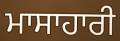
ਮਾਸਾਹਾਰੀ